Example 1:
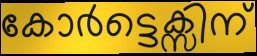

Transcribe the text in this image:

കോർട്ടെക്സിന്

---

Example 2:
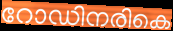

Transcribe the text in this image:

റോഡിനരികെ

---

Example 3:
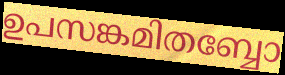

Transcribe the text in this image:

ഉപസങ്കമിതബ്ബോ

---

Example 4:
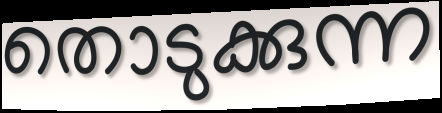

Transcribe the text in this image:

തൊടുക്കുന്ന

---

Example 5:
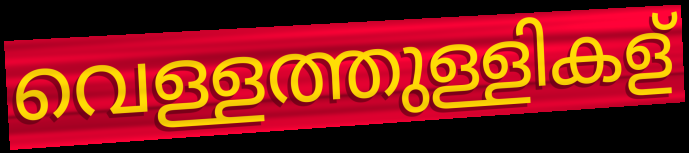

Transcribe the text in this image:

വെള്ളത്തുള്ളികള്